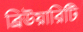
ব্রিউয়ারিটি